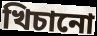
খিচানো